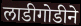
लाडीगोडीने